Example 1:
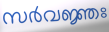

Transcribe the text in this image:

സർവജ്ഞഃ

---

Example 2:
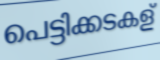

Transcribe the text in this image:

പെട്ടിക്കടകള്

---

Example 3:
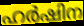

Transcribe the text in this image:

ഹർഷിന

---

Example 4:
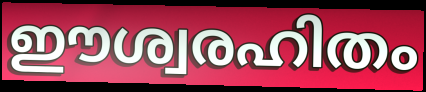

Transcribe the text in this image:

ഈശ്വരഹിതം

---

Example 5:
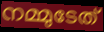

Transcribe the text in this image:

നമ്മുടേത്